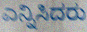
ಎನ್ನಿಸಿದರು